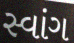
સ્વાંગ